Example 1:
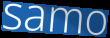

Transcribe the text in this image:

samo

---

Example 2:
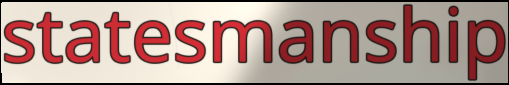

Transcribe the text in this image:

statesmanship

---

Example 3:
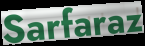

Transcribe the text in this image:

Sarfaraz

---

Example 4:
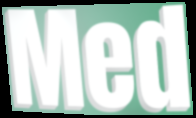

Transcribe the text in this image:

Med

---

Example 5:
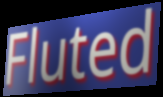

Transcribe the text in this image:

Fluted